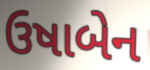
ઉષાબેન